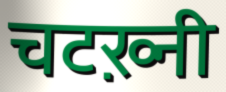
चटख़्नी